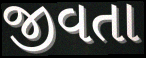
જીવતા